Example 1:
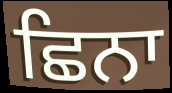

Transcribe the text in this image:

ਛਿਨਾ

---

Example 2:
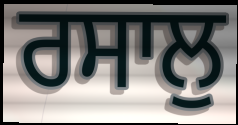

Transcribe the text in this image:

ਰਸਾਲੁ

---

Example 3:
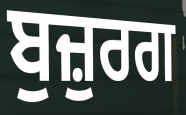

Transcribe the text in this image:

ਬੁਜ਼ੁਰਗ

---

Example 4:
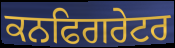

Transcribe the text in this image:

ਕਨਫਿਗਰੇਟਰ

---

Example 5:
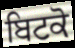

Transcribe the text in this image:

ਬਿਟਕੋ